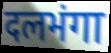
दलभंगा